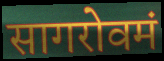
सागरोवमं